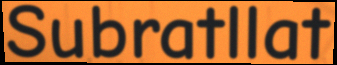
Subratllat